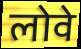
लोवे